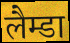
लैम्डा